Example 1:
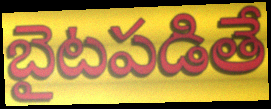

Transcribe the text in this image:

బైటపడితే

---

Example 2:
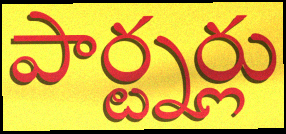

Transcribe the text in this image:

పార్ట్నర్లు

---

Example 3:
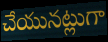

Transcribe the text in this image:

చేయునట్లుగా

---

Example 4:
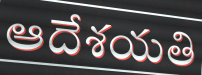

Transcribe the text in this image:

ఆదేశయతి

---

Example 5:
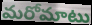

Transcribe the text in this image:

మరోమాటు